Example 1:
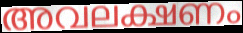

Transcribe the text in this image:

അവലക്ഷണം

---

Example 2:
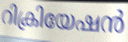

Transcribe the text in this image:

റിക്രിയേഷൻ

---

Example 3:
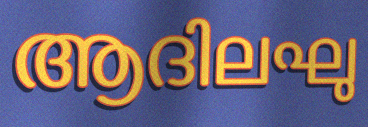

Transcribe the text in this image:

ആദിലഘു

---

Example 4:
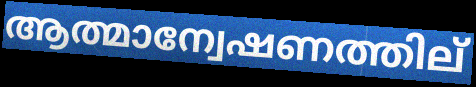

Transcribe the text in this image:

ആത്മാന്വേഷണത്തില്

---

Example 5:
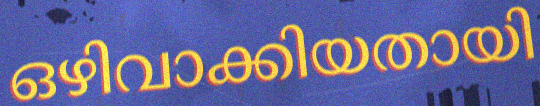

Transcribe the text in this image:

ഒഴിവാക്കിയതായി